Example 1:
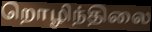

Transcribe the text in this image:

றொழிந்திலை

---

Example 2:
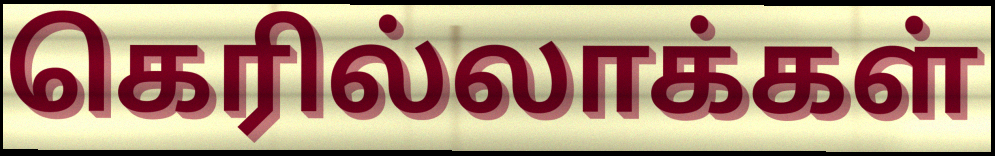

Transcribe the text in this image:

கெரில்லாக்கள்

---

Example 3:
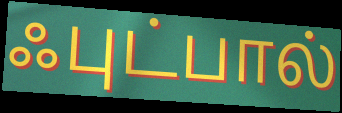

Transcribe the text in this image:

ஃபுட்பால்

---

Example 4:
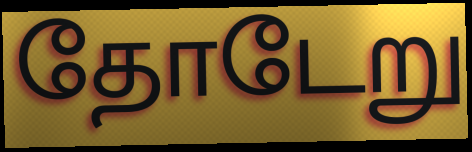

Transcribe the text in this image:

தோடேறு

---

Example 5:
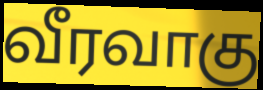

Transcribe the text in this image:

வீரவாகு